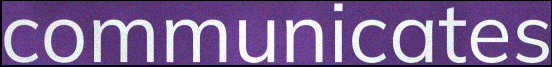
communicates